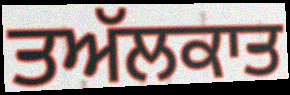
ਤਅੱਲਕਾਤ